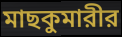
মাছকুমারীর